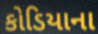
કોડિયાના